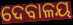
ଦେବାଳୟ